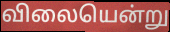
விலையென்று